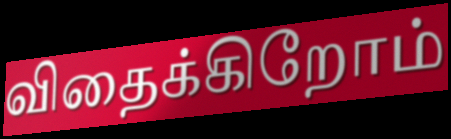
விதைக்கிறோம்